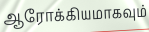
ஆரோக்கியமாகவும்